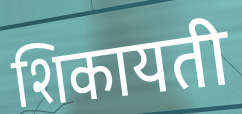
शिकायती